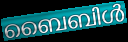
ബൈബിൾ